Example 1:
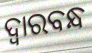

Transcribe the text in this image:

ଦ୍ବାରବନ୍ଧ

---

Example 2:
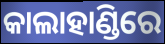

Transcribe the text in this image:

କାଲାହାଣ୍ଡିରେ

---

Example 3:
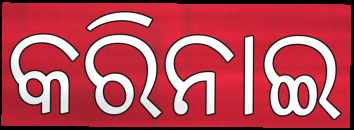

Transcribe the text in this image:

କରିନାଇ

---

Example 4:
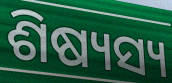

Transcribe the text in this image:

ଶିଷ୍ୟସ୍ୟ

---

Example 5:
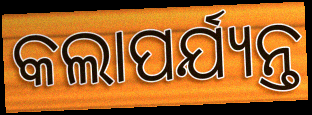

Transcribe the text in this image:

କଲାପର୍ଯ୍ୟନ୍ତ